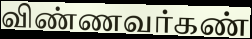
விண்ணவர்கண்